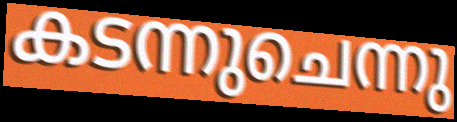
കടന്നുചെന്നു